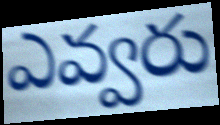
ఎవ్వరు